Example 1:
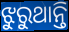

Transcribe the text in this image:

ଝୁରୁଥାନ୍ତି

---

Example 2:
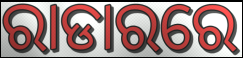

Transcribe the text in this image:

ରାଡାରରେ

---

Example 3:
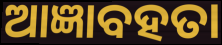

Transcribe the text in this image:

ଆଜ୍ଞାବହତା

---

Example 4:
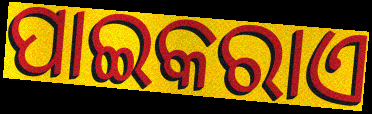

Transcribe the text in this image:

ପାଇକରାଏ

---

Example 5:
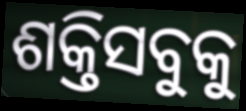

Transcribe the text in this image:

ଶକ୍ତିସବୁକୁ